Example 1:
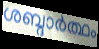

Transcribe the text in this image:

ശബ്ദാർത്ഥം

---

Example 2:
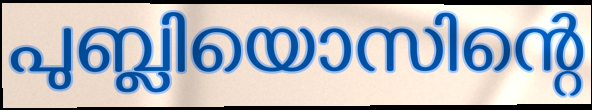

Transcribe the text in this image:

പുബ്ലിയൊസിന്റെ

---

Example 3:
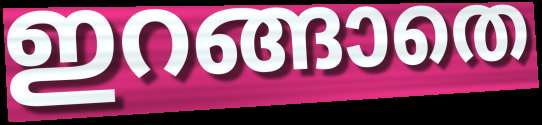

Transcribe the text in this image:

ഇറങ്ങാതെ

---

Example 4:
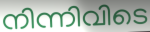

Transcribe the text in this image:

നിന്നിവിടെ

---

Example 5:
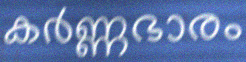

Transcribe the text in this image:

കർണ്ണഭാരം